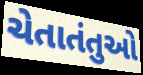
ચેતાતંતુઓ